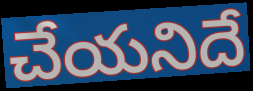
చేయనిదే